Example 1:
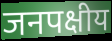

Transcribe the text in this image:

जनपक्षीय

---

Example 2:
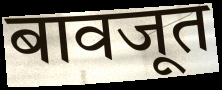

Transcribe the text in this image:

बावजूत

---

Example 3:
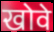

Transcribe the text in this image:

खोवे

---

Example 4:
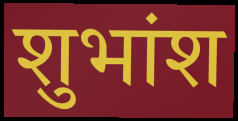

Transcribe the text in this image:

शुभांश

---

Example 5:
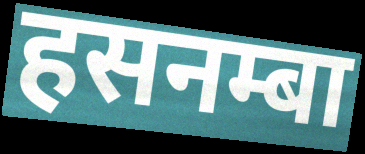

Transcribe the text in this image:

हसनम्बा